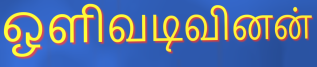
ஒளிவடிவினன்